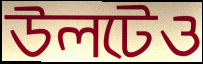
উলটেও